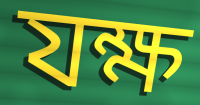
যক্ষ